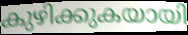
കുഴിക്കുകയായി